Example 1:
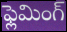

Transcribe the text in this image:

ఫ్లెమింగ్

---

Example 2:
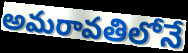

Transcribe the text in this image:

అమరావతిలోనే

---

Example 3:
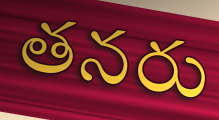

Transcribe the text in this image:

తనరు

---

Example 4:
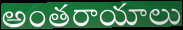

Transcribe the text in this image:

అంతరాయాలు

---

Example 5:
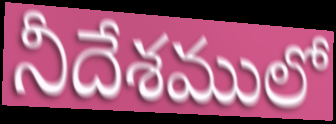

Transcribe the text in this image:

నీదేశములో